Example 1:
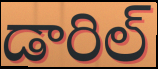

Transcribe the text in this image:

డారిల్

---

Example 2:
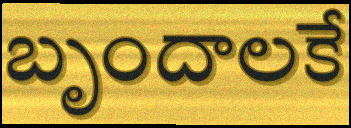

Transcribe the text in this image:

బృందాలకే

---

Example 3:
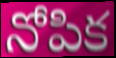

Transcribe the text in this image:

నోపిక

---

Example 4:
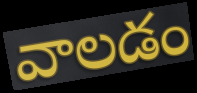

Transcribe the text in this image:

వాలడం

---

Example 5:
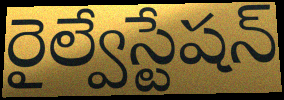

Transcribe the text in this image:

రైల్వేస్టేషన్